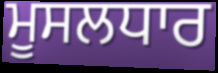
ਮੂਸਲਧਾਰ